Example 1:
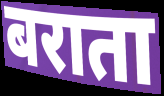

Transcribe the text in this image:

बराता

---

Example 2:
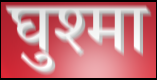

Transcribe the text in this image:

घुश्मा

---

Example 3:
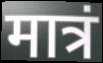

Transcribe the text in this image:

मात्रं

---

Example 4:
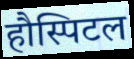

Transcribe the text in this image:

हौस्पिटल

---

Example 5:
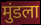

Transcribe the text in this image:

मुंडला